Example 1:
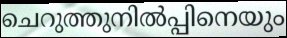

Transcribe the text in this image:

ചെറുത്തുനിൽപ്പിനെയും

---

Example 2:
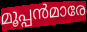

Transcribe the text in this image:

മൂപ്പൻമാരേ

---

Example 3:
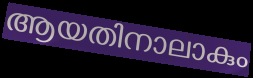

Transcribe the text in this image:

ആയതിനാലാകും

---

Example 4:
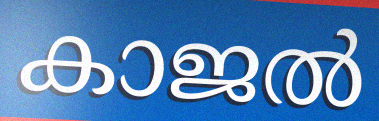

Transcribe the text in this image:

കാജൽ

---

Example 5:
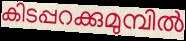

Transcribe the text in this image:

കിടപ്പറക്കുമുമ്പിൽ